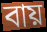
বায়